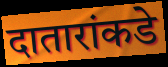
दातारांकडे